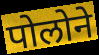
पोलोने